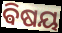
ଵିଷୟ